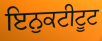
ਇਨੁਕਟੀਟੂਟ